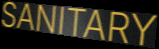
SANITARY